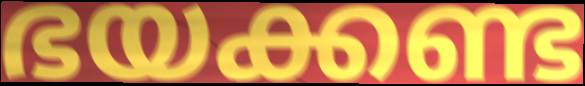
ഭയക്കണ്ട